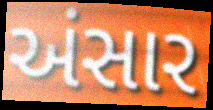
અંસાર